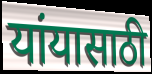
यांयासाठी